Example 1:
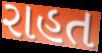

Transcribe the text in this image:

રાહત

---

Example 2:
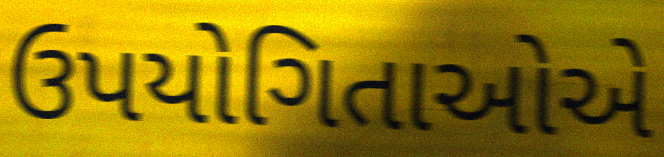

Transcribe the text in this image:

ઉપયોગિતાઓએ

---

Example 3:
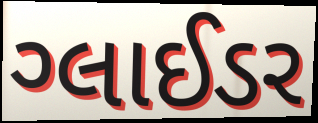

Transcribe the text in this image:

ગ્લાઈડર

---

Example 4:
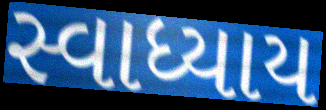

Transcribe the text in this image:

સ્વાધ્યાય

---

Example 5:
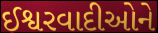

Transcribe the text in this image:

ઈશ્વરવાદીઓને